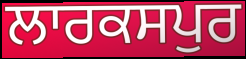
ਲਾਰਕਸਪੁਰ